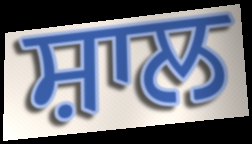
ਸ਼ਾਲ